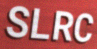
SLRC